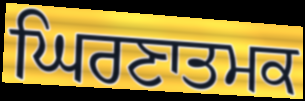
ਘਿਰਣਾਤਮਕ